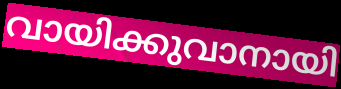
വായിക്കുവാനായി